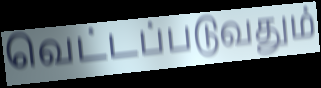
வெட்டப்படுவதும்